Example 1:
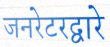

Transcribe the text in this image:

जनरेटरद्वारे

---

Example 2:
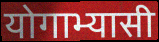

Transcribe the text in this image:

योगाभ्यासी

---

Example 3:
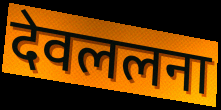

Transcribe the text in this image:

देवललना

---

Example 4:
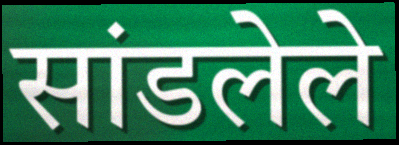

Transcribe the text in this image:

सांडलेले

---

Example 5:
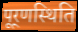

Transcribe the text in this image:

पूर्णस्थिति